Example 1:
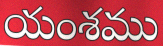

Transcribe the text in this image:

యంశము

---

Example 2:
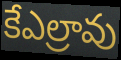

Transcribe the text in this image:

కేఎల్రావు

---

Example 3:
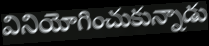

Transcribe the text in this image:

వినియోగించుకున్నాడు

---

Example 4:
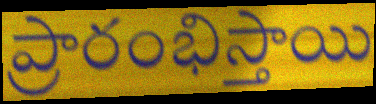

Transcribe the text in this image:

ప్రారంభిస్తాయి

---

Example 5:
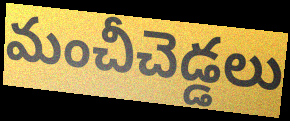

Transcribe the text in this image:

మంచీచెడ్డలు